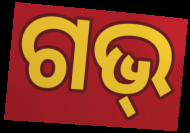
ଗଭ୍